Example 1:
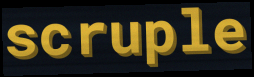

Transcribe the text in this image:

scruple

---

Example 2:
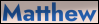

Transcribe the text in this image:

Matthew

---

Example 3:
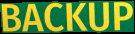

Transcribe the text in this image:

BACKUP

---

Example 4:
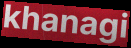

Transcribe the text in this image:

khanagi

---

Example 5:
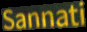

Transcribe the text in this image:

Sannati